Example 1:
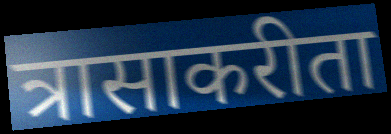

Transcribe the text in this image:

त्रासाकरीता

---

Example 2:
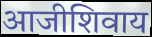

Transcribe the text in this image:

आजीशिवाय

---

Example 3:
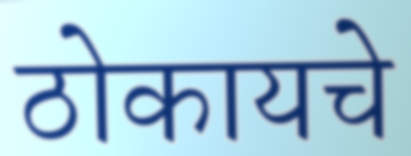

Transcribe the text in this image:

ठोकायचे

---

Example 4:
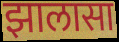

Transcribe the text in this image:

झालासा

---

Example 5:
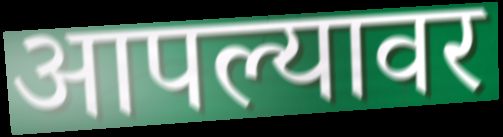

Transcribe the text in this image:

आपल्यावर